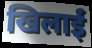
खिलाईं